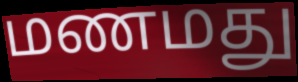
மணமது